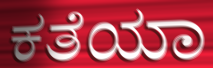
ಕತೆಯಾ